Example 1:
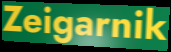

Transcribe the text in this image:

Zeigarnik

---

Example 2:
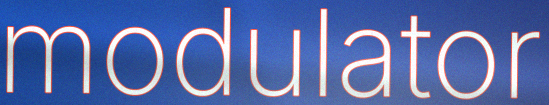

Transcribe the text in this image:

modulator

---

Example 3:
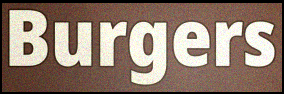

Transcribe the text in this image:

Burgers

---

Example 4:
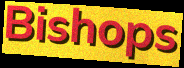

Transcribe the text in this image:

Bishops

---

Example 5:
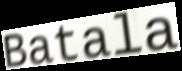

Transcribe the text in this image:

Batala